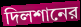
দিলশানের